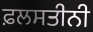
ਫ਼ਲਸਤੀਨੀ